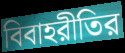
বিবাহরীতির